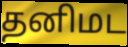
தனிமட